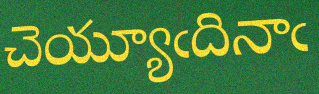
చెయ్యూఁదినాఁ